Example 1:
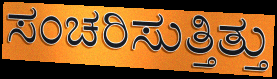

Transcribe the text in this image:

ಸಂಚರಿಸುತ್ತಿತ್ತು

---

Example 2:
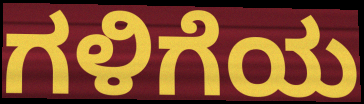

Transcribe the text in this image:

ಗಳಿಗೆಯ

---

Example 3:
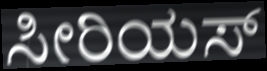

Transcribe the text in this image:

ಸೀರಿಯಸ್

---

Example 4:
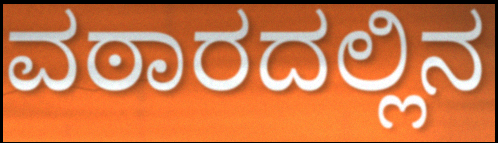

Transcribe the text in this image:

ವಠಾರದಲ್ಲಿನ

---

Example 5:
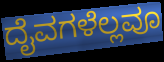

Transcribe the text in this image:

ದೈವಗಳೆಲ್ಲವೂ